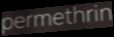
permethrin